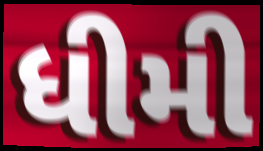
ધીમી